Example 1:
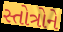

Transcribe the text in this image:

સ્તોત્રોને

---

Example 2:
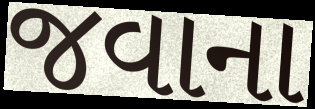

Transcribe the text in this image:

જવાના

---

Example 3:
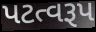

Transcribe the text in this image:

પટત્વરૂપ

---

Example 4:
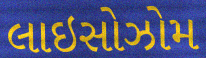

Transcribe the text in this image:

લાઇસોઝોમ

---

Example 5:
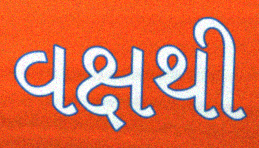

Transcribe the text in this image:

વક્ષથી